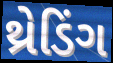
થ્રેડિંગ